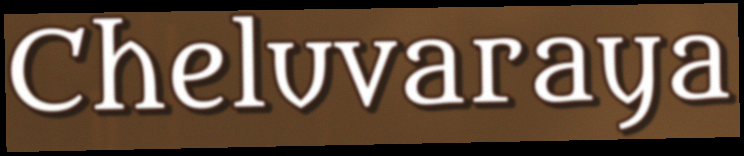
Cheluvaraya